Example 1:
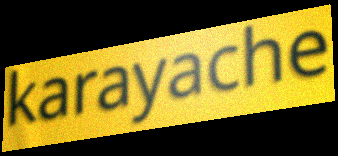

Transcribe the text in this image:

karayache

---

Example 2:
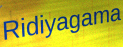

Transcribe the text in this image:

Ridiyagama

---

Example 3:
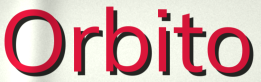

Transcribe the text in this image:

Orbito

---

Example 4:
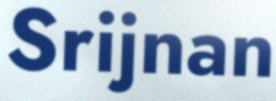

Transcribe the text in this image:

Srijnan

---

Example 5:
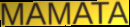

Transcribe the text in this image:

MAMATA